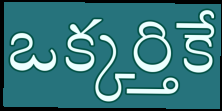
ఒక్కర్తికే